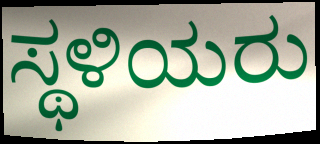
ಸ್ಥಳಿಯರು